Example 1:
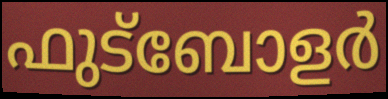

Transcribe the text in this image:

ഫുട്ബോളർ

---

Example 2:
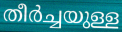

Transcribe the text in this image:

തീർച്ചയുള്ള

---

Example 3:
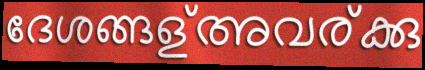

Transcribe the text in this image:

ദേശങ്ങള്അവര്ക്കു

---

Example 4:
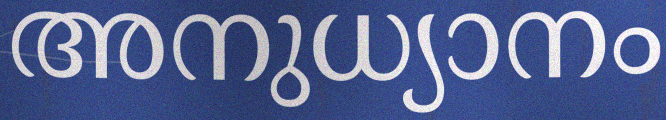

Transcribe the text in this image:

അനുധ്യാനം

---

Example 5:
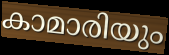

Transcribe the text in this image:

കാമാരിയും